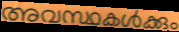
അവസ്ഥകൾക്കും